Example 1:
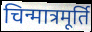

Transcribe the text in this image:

चिन्मात्रमूर्ति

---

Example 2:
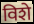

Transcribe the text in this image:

विशे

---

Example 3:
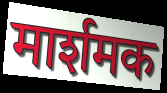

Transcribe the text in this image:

मार्शमक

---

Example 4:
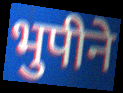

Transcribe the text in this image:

भुपीने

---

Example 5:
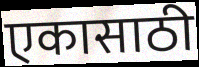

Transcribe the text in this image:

एकासाठी